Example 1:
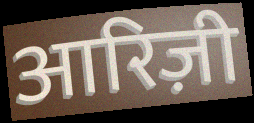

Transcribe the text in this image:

आरिज़ी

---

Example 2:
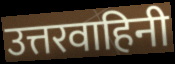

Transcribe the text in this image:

उत्तरवाहिनी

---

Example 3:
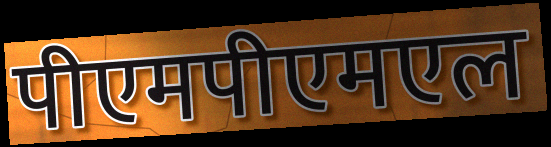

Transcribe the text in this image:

पीएमपीएमएल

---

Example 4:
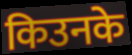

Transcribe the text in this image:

किउनके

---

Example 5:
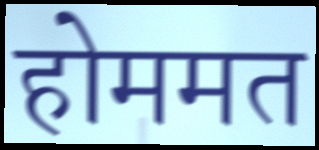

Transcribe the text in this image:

होममत